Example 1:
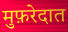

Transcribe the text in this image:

मुफ़रेदात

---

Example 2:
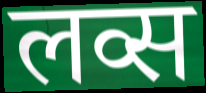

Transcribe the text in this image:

लव्स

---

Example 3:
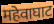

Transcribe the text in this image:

महेवाघाट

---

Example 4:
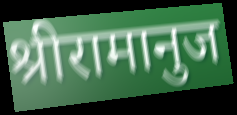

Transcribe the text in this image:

श्रीरामानुज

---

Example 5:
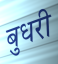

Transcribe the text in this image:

बुधरी